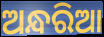
ଅନ୍ଧରିଆ